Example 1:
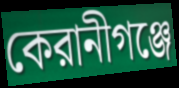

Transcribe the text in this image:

কেরানীগঞ্জে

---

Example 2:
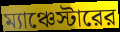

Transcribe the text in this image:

ম্যাঞ্চেস্টারের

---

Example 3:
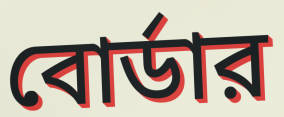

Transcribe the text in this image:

বোর্ডার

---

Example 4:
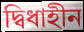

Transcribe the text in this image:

দ্বিধাহীন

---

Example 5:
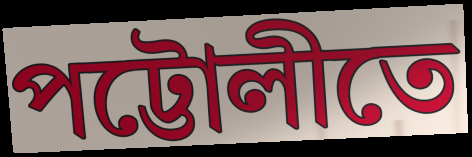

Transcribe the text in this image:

পট্টোলীতে